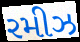
રમીઝ